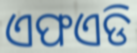
ଏଫଏଡି